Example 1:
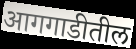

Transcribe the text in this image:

आगगाडीतील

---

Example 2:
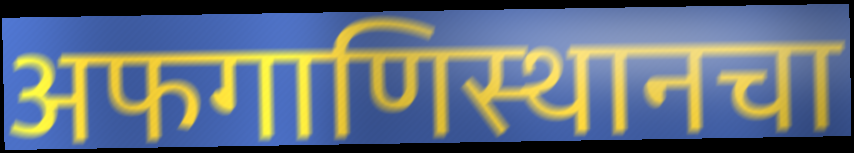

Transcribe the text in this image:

अफगाणिस्थानचा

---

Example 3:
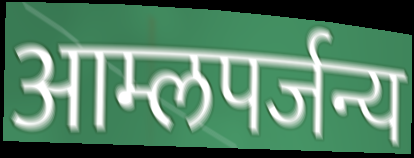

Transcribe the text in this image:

आम्लपर्जन्य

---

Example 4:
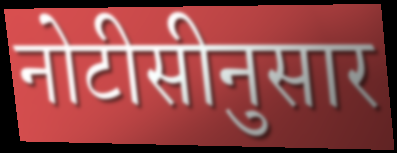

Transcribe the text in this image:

नोटीसीनुसार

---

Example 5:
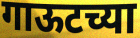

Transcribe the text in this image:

गाऊटच्या